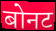
बोनट